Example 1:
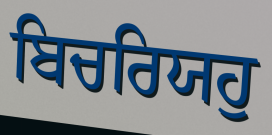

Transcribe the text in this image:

ਬਿਚਰਿਯਹੁ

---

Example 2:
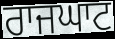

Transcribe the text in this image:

ਰਾਜਘਾਟ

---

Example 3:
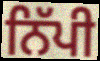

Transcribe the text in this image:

ਨਿੱਪੀ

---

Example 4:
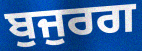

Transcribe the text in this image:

ਬੁਜੁਰਗ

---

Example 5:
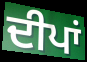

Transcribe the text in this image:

ਦੀਪਾਂ